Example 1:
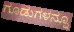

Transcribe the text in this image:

ಗೂಡುಗಳನ್ನೂ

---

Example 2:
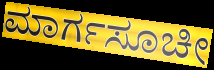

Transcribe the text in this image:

ಮಾರ್ಗಸೂಚೀ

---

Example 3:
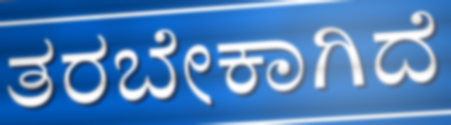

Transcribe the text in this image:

ತರಬೇಕಾಗಿದೆ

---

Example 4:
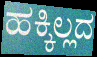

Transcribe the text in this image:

ಹಕ್ಕಿಲ್ಲದ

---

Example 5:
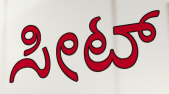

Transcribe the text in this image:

ಸೀಟ್